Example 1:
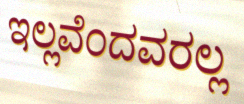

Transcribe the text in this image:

ಇಲ್ಲವೆಂದವರಲ್ಲ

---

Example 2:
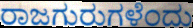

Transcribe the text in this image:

ರಾಜಗುರುಗಳೆಂದು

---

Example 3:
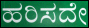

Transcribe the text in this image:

ಹರಿಸದೇ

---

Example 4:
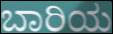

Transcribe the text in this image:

ಬಾರಿಯ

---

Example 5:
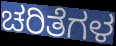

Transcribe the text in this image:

ಚರಿತೆಗಳ